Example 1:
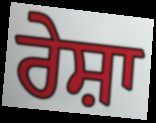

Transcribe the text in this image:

ਰੇਸ਼ਾ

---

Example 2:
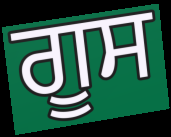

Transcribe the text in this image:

ਗੂਸ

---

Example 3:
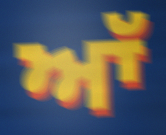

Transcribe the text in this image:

ਆੱ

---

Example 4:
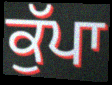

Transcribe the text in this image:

ਕੁੱਪਾ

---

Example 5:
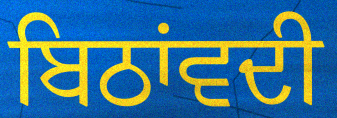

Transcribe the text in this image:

ਬਿਠਾਂਵਦੀ